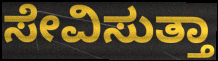
ಸೇವಿಸುತ್ತಾ